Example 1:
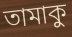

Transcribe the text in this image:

তামাকু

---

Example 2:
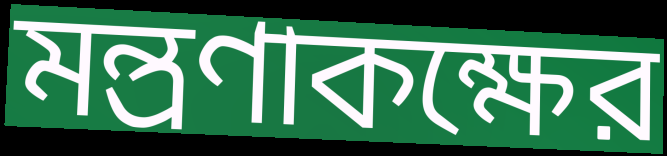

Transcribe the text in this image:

মন্ত্রণাকক্ষের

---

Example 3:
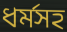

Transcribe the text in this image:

ধর্মসহ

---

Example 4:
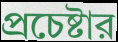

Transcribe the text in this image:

প্রচেষ্টার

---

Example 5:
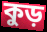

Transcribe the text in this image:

কুড়